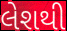
લેશથી